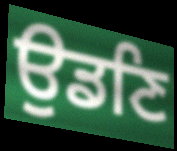
ਉਡਣਿ